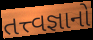
તત્ત્વજ્ઞાનો